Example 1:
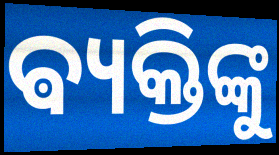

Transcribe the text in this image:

ଵ୍ୟକ୍ତିଙ୍କୁ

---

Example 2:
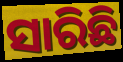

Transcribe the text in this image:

ସାରିଛି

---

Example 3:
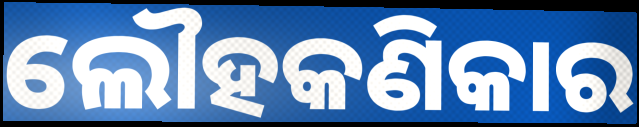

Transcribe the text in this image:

ଲୌହକଣିକାର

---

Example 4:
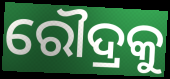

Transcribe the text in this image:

ରୌଦ୍ରକୁ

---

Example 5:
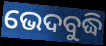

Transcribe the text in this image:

ଭେଦବୁଦ୍ଧି